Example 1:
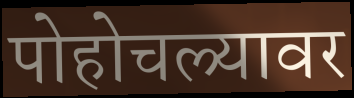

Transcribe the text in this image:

पोहोचल्यावर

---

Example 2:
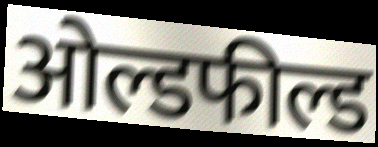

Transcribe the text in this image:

ओल्डफील्ड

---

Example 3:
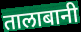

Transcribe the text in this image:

तालाबानी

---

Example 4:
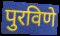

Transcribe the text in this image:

पुरविणे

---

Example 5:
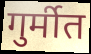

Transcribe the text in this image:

गुर्मीत